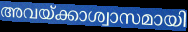
അവയ്ക്കാശ്വാസമായി